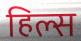
हिल्स